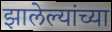
झालेल्यांच्या